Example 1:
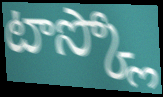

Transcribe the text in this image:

టాస్క్లో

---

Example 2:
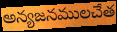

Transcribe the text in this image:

అన్యజనములచేత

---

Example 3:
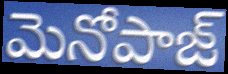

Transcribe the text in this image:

మెనోపాజ్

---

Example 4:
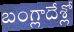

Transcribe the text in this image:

బంగ్లాదేశ్లో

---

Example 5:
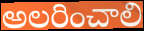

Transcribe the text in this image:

అలరించాలి